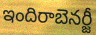
ఇందిరాబెనర్జీ